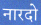
नारदो